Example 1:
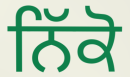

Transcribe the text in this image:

ਨਿੱਕੋ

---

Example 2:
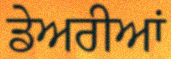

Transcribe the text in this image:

ਡੇਅਰੀਆਂ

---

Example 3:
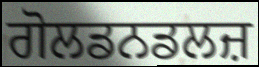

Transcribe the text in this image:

ਗੋਲਡਨਡਲਜ਼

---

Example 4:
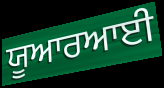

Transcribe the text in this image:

ਯੂਆਰਆਈ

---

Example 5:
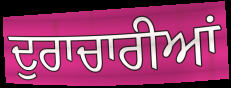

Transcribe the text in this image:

ਦੁਰਾਚਾਰੀਆਂ